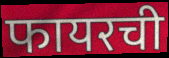
फायरची